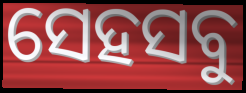
ସେହସବୁ